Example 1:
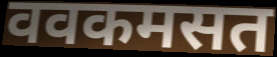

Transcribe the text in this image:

ववकमसत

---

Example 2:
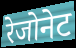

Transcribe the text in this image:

रेजोनेट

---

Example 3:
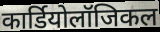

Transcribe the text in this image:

कार्डियोलॉजिकल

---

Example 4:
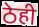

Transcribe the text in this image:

ठेही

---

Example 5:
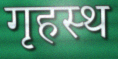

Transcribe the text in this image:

गृहस्थ